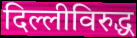
दिल्लीविरुद्ध